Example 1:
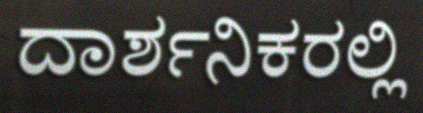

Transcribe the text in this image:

ದಾರ್ಶನಿಕರಲ್ಲಿ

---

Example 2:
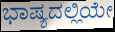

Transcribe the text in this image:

ಭಾಷ್ಯದಲ್ಲಿಯೇ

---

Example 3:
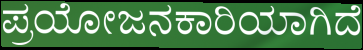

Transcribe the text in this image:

ಪ್ರಯೋಜನಕಾರಿಯಾಗಿದೆ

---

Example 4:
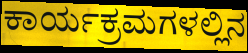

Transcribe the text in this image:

ಕಾರ್ಯಕ್ರಮಗಳಲ್ಲಿನ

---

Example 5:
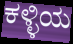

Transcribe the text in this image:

ಕಳ್ಳಿಯ